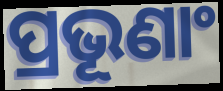
ପ୍ରଭୂଣାଂ